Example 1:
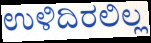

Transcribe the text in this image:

ಉಳಿದಿರಲಿಲ್ಲ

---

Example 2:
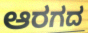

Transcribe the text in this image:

ಆರಗದ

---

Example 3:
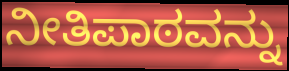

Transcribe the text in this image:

ನೀತಿಪಾಠವನ್ನು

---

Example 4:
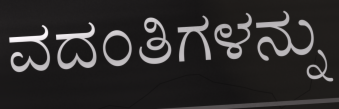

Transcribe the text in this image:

ವದಂತಿಗಳನ್ನು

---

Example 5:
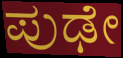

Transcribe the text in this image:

ಪುಢೇ